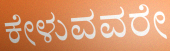
ಕೇಳುವವರೇ